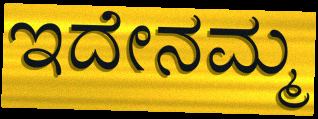
ಇದೇನಮ್ಮ